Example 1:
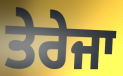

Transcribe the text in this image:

ਤੇਰੇਜਾ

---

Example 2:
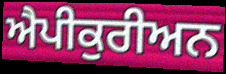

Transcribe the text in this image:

ਐਪੀਕੁਰੀਅਨ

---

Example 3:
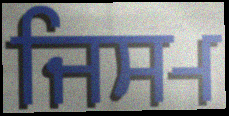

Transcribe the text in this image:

ਜਿਸ੍ਮ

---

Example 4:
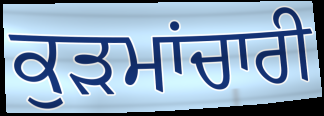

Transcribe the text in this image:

ਕੁੜਮਾਂਚਾਰੀ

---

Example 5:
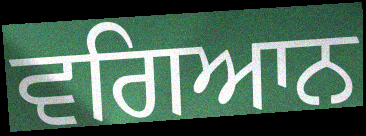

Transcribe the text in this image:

ਵਗਿਆਨ